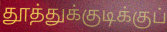
தூத்துக்குடிக்குப்